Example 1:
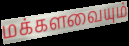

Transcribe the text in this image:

மக்களவையும்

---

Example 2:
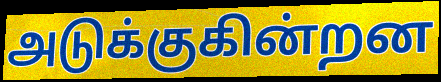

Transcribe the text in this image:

அடுக்குகின்றன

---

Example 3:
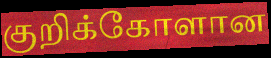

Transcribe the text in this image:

குறிக்கோளான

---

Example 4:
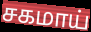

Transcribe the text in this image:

சகமாய்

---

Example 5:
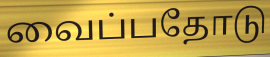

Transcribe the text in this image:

வைப்பதோடு